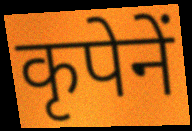
कृपेनें